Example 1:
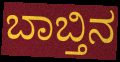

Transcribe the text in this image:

ಬಾಬ್ತಿನ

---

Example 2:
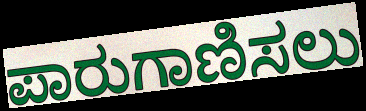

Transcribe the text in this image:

ಪಾರುಗಾಣಿಸಲು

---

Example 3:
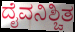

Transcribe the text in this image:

ದೈವನಿಶ್ಚಿತ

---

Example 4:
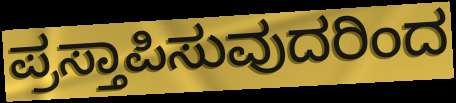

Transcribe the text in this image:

ಪ್ರಸ್ತಾಪಿಸುವುದರಿಂದ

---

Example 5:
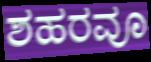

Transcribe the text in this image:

ಶಹರವೂ